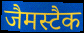
जैमस्टैक